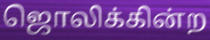
ஜொலிக்கின்ற